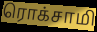
ரொக்சாமி